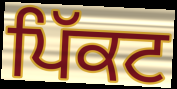
ਪਿੱਕਟ